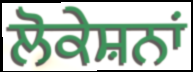
ਲੋਕੇਸ਼ਨਾਂ